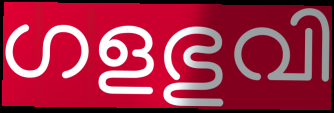
ഗളഭുവി